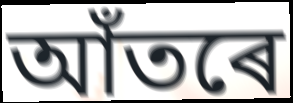
আঁতৰে